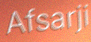
Afsarji